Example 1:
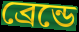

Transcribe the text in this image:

ব্রেন্ডে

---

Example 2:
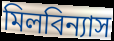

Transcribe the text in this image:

মিলবিন্যাস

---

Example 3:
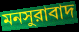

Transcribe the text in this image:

মনসুরাবাদ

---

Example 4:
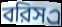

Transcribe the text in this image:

বরিসএ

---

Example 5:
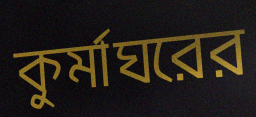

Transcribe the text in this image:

কুর্মাঘরের